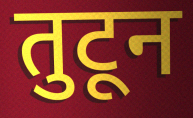
तुटून